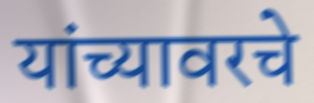
यांच्यावरचे